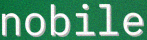
nobile